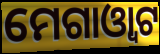
ମେଗାଓ୍ଵାଟ